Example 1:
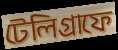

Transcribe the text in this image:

টেলিগ্রাফে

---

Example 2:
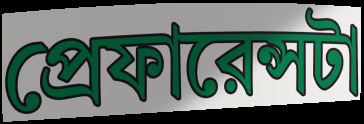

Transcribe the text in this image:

প্রেফারেন্সটা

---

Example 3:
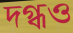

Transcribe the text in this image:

দগ্ধও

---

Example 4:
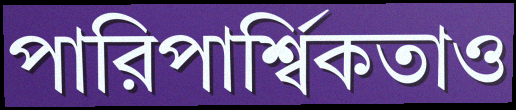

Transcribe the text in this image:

পারিপার্শ্বিকতাও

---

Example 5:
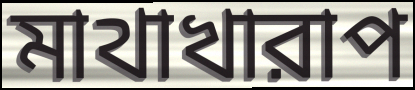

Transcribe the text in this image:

মাথাখারাপ